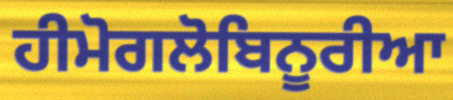
ਹੀਮੋਗਲੋਬਿਨੂਰੀਆ